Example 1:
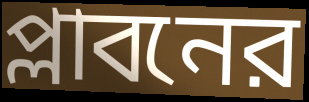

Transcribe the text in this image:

প্লাবনের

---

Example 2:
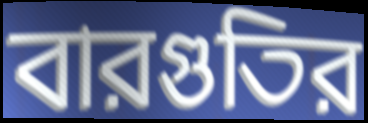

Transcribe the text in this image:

বারগুতির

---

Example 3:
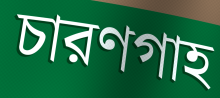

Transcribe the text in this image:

চারণগাহ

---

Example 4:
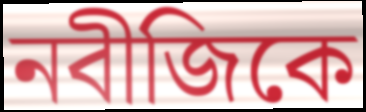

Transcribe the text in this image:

নবীজিকে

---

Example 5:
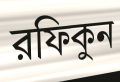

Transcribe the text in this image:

রফিকুন